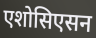
एशोसिएसन